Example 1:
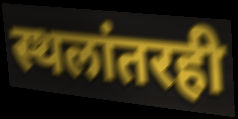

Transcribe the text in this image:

स्थलांतरही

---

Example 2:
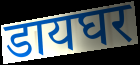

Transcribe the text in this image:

डायघर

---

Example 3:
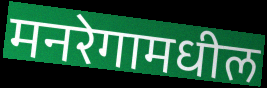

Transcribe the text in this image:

मनरेगामधील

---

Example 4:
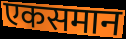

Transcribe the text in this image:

एकसमान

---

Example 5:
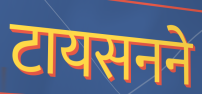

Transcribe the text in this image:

टायसनने